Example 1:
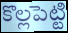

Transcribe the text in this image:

కొల్లపెట్టి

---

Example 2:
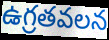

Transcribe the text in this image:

ఉగ్రతవలన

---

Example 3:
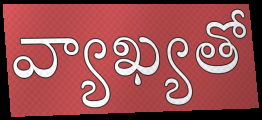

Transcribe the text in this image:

వ్యాఖ్యతో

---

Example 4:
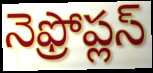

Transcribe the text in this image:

నెఫ్రోప్లస్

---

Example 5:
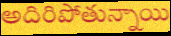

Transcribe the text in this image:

అదిరిపోతున్నాయి